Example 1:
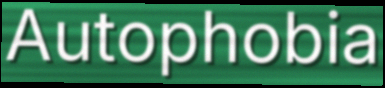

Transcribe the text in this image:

Autophobia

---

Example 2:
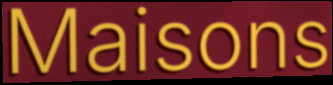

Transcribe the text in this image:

Maisons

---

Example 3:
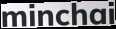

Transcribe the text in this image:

minchai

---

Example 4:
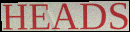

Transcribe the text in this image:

HEADS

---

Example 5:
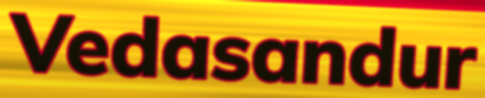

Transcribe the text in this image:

Vedasandur